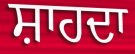
ਸ਼ਾਹਦਾ